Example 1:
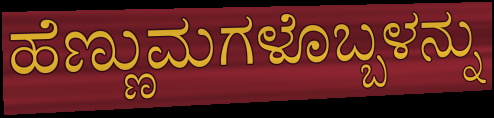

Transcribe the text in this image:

ಹೆಣ್ಣುಮಗಳೊಬ್ಬಳನ್ನು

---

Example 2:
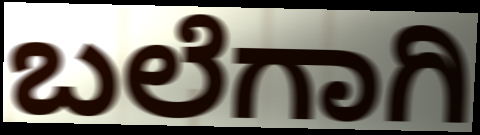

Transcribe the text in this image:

ಬಲೆಗಾಗಿ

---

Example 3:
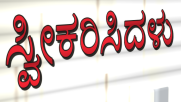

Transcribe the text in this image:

ಸ್ವೀಕರಿಸಿದಳು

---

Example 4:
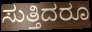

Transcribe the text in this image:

ಸುತ್ತಿದರೂ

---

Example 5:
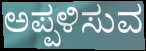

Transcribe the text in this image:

ಅಪ್ಪಳಿಸುವ